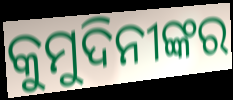
କୁମୁଦିନୀଙ୍କର